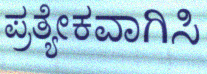
ಪ್ರತ್ಯೇಕವಾಗಿಸಿ